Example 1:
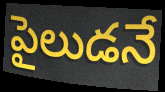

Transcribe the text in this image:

పైలుడనే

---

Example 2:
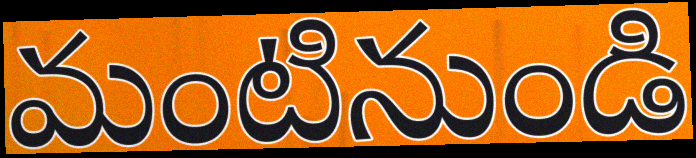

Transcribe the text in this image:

మంటినుండి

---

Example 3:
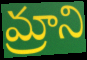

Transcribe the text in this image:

మ్రాని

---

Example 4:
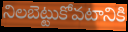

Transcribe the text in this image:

నిలబెట్టుకోవటానికి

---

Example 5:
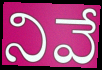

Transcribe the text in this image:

నివే